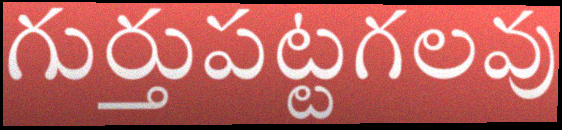
గుర్తుపట్టగలవు